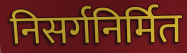
निसर्गनिर्मित